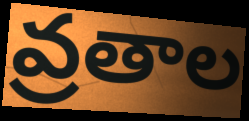
వ్రతాల